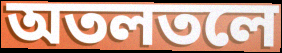
অতলতলে